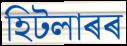
হিটলাৰৰ